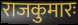
राजकुमारः